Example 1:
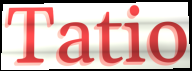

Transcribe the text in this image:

Tatio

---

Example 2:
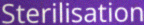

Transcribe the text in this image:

Sterilisation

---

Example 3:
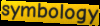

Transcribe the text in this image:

symbology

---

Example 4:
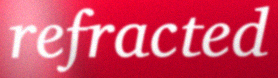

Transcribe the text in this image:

refracted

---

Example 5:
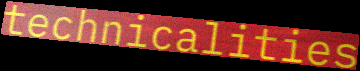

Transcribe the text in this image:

technicalities